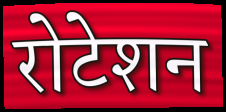
रोटेशन